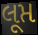
લૂપ્ત